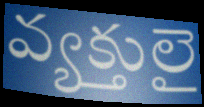
వ్యక్తులై